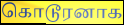
கொடூரனாக